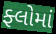
ફ્લોમાં